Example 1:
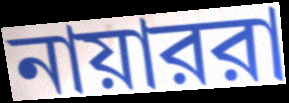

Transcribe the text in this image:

নায়াররা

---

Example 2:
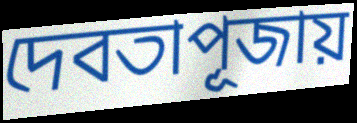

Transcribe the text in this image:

দেবতাপূজায়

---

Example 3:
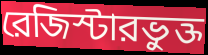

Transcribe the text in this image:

রেজিস্টারভুক্ত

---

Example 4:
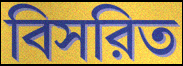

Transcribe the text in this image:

বিসরিত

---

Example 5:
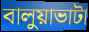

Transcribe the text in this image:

বালুয়াভাটা